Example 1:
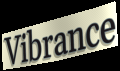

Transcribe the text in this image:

Vibrance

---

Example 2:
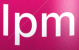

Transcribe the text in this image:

Ipm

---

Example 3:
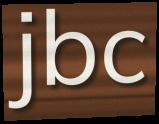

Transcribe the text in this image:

jbc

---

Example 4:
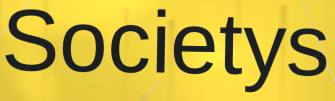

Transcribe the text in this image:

Societys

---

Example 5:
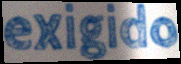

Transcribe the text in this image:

exigido